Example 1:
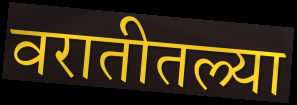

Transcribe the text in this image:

वरातीतल्या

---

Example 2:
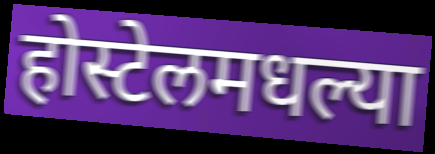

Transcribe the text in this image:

होस्टेलमधल्या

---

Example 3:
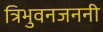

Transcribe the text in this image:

त्रिभुवनजननी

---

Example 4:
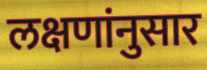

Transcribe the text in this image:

लक्षणांनुसार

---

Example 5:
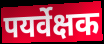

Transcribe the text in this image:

पयर्वेक्षक